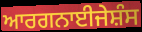
ਆਰਗਨਾਈਜੇਸ਼ੰਸ